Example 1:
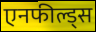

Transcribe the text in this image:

एनफील्ड्स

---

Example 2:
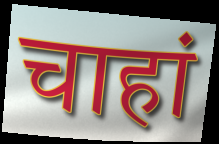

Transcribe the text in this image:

चाहां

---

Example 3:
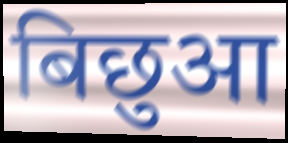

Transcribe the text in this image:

बिछुआ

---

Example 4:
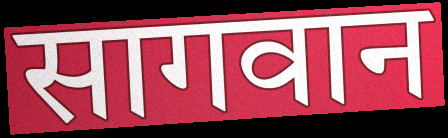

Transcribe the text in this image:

सागवान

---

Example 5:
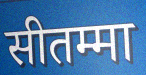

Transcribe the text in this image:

सीतम्मा